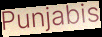
Punjabis